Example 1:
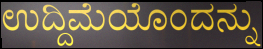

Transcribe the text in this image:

ಉದ್ದಿಮೆಯೊಂದನ್ನು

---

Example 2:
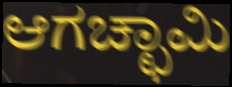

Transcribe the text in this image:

ಆಗಚ್ಛಾಮಿ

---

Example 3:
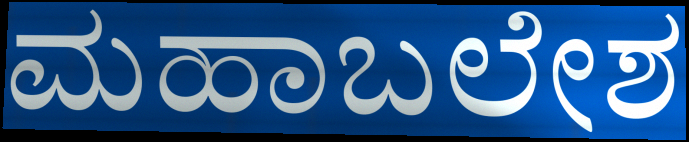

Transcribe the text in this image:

ಮಹಾಬಲೇಶ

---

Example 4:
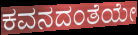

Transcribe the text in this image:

ಕವನದಂತೆಯೇ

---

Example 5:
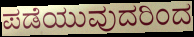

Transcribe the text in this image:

ಪಡೆಯುವುದರಿಂದ